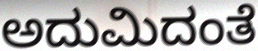
ಅದುಮಿದಂತೆ